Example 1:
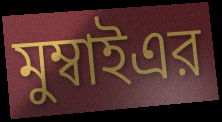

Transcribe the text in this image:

মুম্বাইএর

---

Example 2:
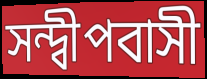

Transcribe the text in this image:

সন্দ্বীপবাসী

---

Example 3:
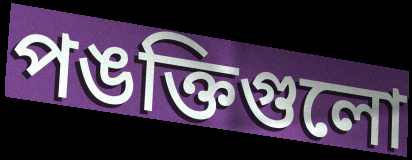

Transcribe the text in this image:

পঙক্তিগুলো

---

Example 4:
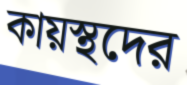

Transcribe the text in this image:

কায়স্থদের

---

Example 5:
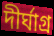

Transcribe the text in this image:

দীর্ঘাগ্র